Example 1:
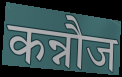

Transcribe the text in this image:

कन्नौज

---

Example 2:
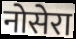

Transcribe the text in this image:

नोसेरा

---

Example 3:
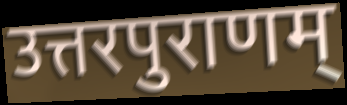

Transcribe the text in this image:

उत्तरपुराणम्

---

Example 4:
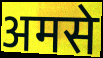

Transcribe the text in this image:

अमसे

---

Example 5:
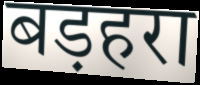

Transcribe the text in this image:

बड़हरा